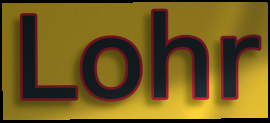
Lohr